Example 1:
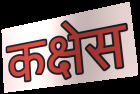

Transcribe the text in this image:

कक्षेस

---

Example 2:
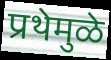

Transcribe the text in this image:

प्रथेमुळे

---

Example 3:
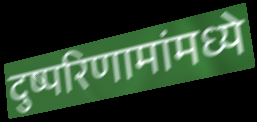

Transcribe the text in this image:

दुष्परिणामांमध्ये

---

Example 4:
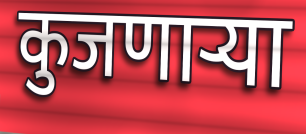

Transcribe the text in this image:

कुजणाऱ्या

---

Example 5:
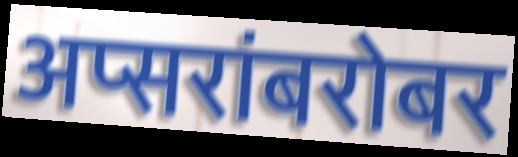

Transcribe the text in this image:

अप्सरांबरोबर